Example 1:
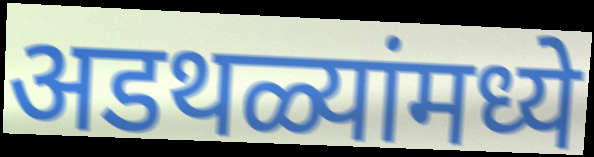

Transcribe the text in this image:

अडथळ्यांमध्ये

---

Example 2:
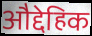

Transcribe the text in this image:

औद्देहिक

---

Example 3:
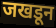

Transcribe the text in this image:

जखडून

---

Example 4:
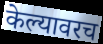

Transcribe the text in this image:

केल्यावरच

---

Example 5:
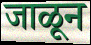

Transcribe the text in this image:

जाळून